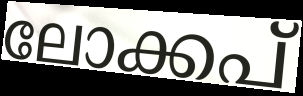
ലോക്കപ്